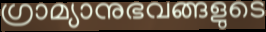
ഗ്രാമ്യാനുഭവങ്ങളുടെ